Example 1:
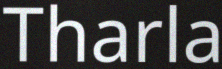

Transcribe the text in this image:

Tharla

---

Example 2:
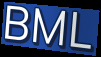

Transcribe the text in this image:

BML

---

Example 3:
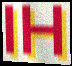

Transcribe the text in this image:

IH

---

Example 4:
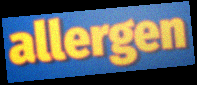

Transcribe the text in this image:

allergen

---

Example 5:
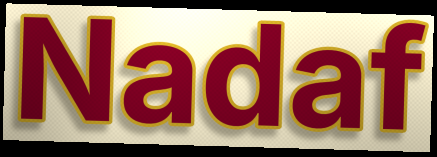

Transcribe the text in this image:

Nadaf